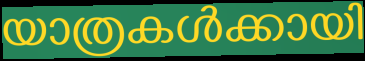
യാത്രകൾക്കായി